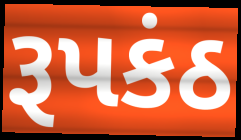
રૂપકંઠ